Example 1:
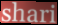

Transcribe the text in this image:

shari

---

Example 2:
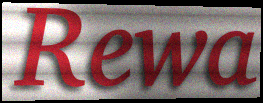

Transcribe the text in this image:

Rewa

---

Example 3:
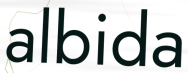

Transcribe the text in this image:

albida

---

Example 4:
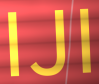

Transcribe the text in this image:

IJI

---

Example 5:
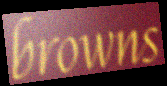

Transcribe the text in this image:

browns